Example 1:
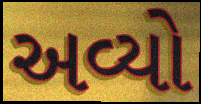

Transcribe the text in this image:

અવ્યો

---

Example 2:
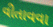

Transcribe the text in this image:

વીતાવવા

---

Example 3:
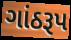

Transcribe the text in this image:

ગાંઠરૂપ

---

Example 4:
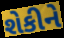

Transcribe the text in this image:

શેકીને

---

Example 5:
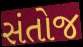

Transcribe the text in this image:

સંતોજ